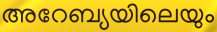
അറേബ്യയിലെയും